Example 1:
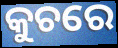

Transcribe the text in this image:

କୁଚରେ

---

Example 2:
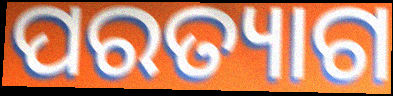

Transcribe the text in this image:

ପରତ୍ୟାଗ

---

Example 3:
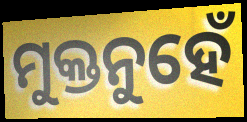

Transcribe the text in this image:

ମୁକ୍ତନୁହେଁ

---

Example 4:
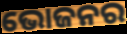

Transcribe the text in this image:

ଭୋଜନର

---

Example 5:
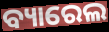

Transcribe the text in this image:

ବ୍ୟାରେଲ